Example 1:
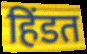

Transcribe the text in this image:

हिंडत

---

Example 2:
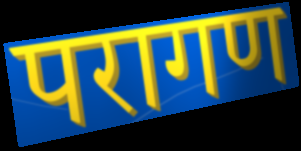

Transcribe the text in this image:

परागण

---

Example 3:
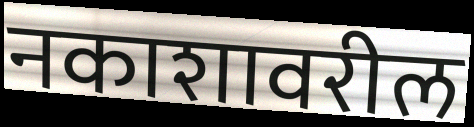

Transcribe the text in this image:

नकाशावरील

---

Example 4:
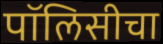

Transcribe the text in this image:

पॉलिसीचा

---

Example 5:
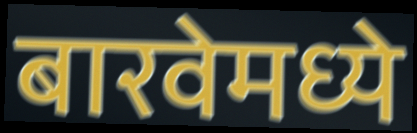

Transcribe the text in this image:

बारवेमध्ये